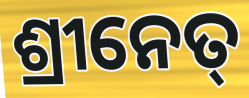
ଶ୍ରୀନେତ୍